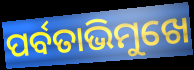
ପର୍ବତାଭିମୁଖେ